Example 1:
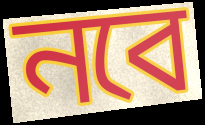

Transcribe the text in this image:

নবে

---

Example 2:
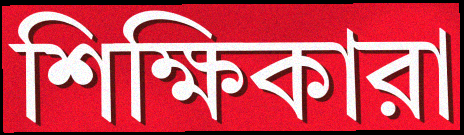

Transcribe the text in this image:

শিক্ষিকারা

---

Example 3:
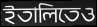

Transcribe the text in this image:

ইতালিতেও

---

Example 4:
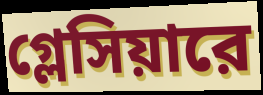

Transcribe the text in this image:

গ্লেসিয়ারে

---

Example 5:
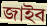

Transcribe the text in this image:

জাইব